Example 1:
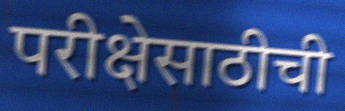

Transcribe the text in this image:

परीक्षेसाठीची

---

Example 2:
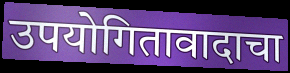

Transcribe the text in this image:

उपयोगितावादाचा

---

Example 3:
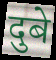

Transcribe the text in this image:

दुबे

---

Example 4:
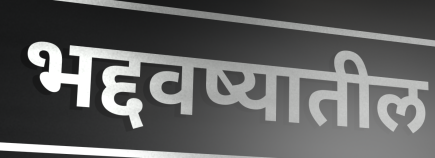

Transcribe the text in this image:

भद्दवष्यातील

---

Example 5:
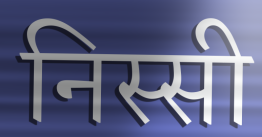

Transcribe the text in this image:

निस्सी